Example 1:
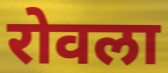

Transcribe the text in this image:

रोवला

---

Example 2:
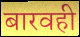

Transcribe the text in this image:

बारवही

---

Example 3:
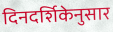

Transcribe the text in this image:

दिनदर्शिकेनुसार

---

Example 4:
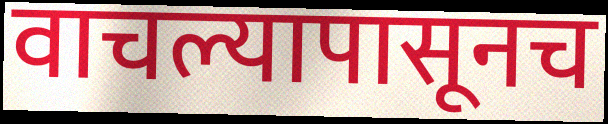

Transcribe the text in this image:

वाचल्यापासूनच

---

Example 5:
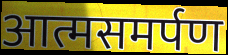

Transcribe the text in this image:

आत्मसमर्पण